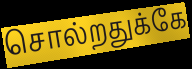
சொல்றதுக்கே